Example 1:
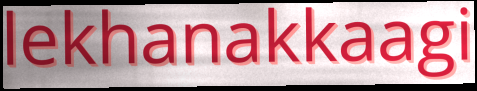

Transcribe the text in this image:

lekhanakkaagi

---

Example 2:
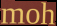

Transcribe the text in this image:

moh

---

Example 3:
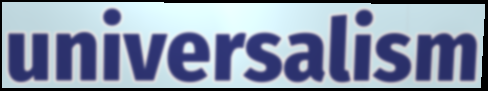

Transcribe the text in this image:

universalism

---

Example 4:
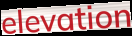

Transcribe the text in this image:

elevation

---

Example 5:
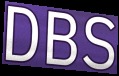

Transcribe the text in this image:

DBS